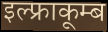
इल्फ्राकूम्ब